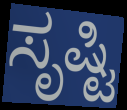
ಸೃಷ್ಟಿ